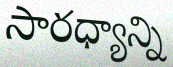
సారధ్యాన్ని